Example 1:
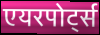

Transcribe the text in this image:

एयरपोर्ट्स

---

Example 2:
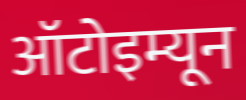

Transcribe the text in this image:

ऑटोइम्‍यून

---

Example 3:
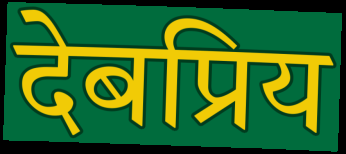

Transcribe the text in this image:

देबप्रिय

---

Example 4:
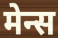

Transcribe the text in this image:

मेन्स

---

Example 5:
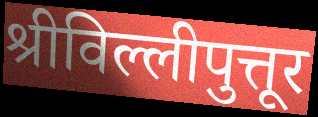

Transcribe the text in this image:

श्रीविल्लीपुत्तूर